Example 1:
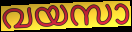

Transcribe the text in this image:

വയസാ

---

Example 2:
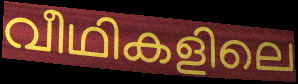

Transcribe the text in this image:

വീഥികളിലെ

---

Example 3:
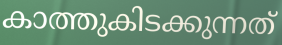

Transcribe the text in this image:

കാത്തുകിടക്കുന്നത്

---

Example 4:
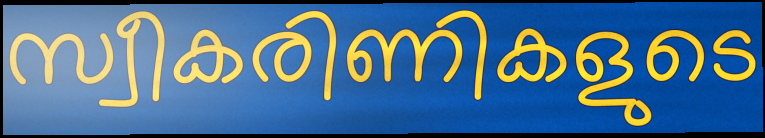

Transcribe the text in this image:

സ്വീകരിണികളുടെ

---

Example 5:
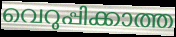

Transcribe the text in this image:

വെറുപ്പിക്കാത്ത